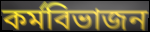
কর্মবিভাজন